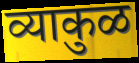
व्याकुळ